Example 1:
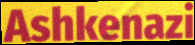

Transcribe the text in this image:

Ashkenazi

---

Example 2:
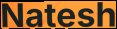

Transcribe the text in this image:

Natesh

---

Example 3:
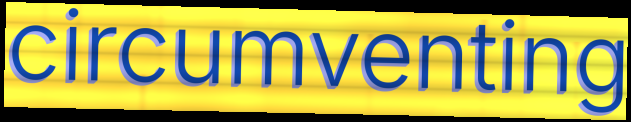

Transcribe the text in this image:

circumventing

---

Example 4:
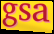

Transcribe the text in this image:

gsa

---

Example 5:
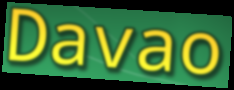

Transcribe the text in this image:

Davao